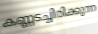
കണ്ണടച്ചിരിക്കുന്ന